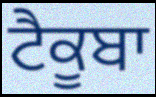
ਟੈਕੂਬਾ